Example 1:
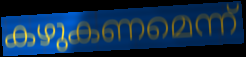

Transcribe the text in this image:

കഴുകണമെന്ന്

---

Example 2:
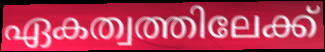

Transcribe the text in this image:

ഏകത്വത്തിലേക്ക്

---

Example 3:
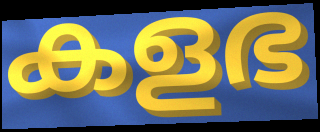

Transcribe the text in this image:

കളഭ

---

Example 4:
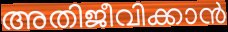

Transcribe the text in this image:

അതിജീവിക്കാൻ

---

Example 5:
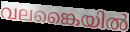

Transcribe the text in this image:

വലങ്കൈയിൽ